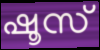
ഷൂസ്